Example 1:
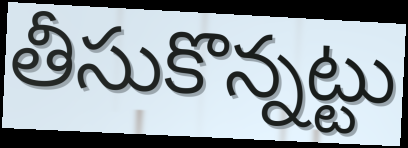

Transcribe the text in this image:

తీసుకొన్నట్టు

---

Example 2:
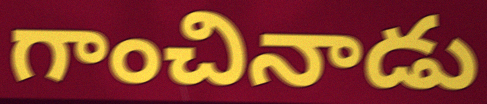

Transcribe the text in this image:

గాంచినాడు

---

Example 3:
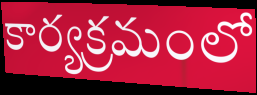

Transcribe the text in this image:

కార్యక్రమంలో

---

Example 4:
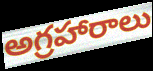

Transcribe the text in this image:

అగ్రహారాలు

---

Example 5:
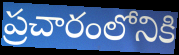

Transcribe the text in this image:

ప్రచారంలోనికి